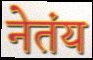
नेतंय